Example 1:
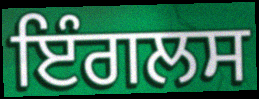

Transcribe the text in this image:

ਇੰਗਲਸ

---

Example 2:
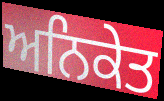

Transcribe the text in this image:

ਅਨਿਕੇਤ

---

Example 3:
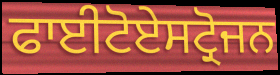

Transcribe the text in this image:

ਫਾਈਟੋਏਸਟ੍ਰੋਜਨ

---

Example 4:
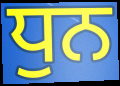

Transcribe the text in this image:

ਧੁਨ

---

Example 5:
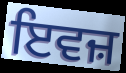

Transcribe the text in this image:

ਇਵਜ਼